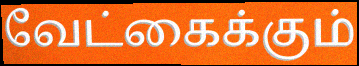
வேட்கைக்கும்